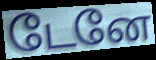
டேனே